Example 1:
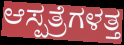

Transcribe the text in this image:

ಆಸ್ಪತ್ರೆಗಳತ್ತ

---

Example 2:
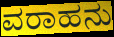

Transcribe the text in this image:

ವರಾಹನು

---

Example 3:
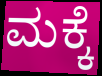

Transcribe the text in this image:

ಮಕ್ಕೆ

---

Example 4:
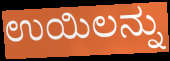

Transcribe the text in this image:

ಉಯಿಲನ್ನು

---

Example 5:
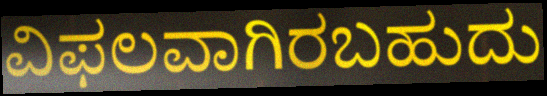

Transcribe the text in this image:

ವಿಫಲವಾಗಿರಬಹುದು